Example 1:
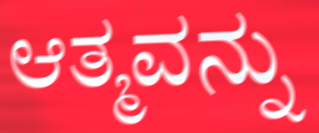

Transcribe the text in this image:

ಆತ್ಮವನ್ನು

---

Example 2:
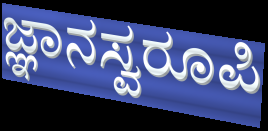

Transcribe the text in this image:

ಜ್ಞಾನಸ್ವರೂಪಿ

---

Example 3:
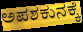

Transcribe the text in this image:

ಅಪಶಕುನಕ್ಕೆ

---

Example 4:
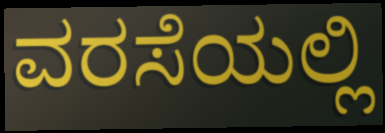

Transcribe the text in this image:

ವರಸೆಯಲ್ಲಿ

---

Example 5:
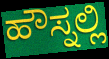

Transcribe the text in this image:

ಹೌಸ್ನಲ್ಲಿ